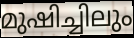
മുഷിച്ചിലും